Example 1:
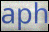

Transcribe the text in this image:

aph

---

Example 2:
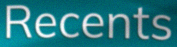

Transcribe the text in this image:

Recents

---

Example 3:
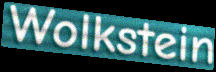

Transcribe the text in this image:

Wolkstein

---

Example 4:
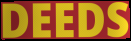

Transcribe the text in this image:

DEEDS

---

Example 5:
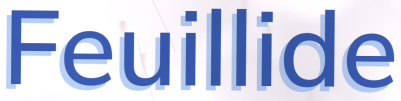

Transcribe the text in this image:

Feuillide